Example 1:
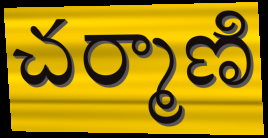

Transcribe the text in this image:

చర్మాణి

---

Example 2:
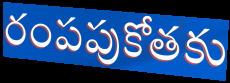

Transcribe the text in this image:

రంపపుకోతకు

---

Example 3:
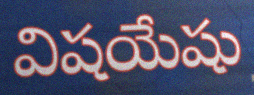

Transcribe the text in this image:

విషయేషు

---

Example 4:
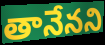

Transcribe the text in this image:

తానేనని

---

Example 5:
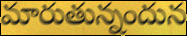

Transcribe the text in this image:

మారుతున్నందున